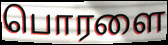
பொரளை